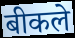
बीकले